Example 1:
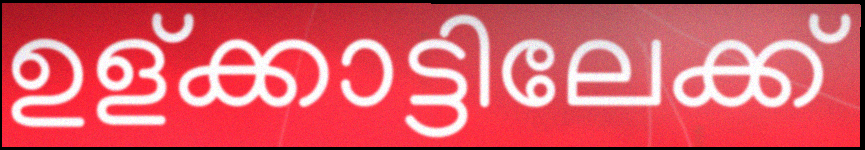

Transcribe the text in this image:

ഉള്ക്കാട്ടിലേക്ക്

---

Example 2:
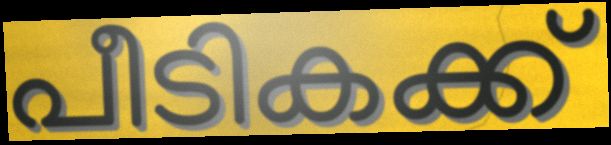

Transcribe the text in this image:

പീടികക്ക്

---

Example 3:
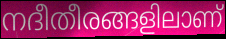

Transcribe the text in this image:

നദീതീരങ്ങളിലാണ്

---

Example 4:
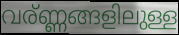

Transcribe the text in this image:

വര്ണ്ണങ്ങളിലുള്ള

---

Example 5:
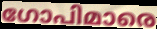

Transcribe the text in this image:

ഗോപിമാരെ